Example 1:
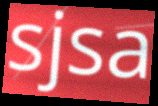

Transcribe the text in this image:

sjsa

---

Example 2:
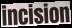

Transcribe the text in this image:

incision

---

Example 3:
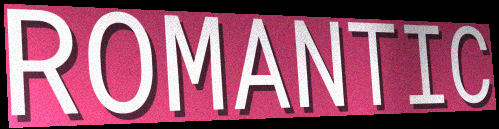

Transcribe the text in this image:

ROMANTIC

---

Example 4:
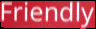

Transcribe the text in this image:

Friendly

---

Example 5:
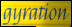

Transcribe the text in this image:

gyration